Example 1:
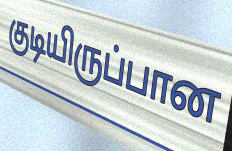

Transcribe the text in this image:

குடியிருப்பான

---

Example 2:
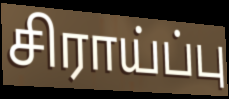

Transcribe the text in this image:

சிராய்ப்பு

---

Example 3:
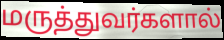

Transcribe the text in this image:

மருத்துவர்களால்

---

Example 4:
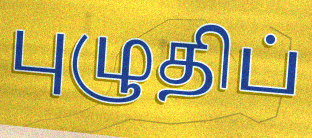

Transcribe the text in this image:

புழுதிப்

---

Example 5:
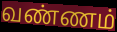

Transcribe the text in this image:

வண்ணம்